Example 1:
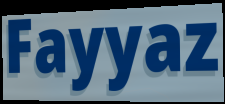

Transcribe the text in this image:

Fayyaz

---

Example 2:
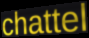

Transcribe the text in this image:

chattel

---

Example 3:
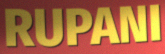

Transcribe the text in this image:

RUPANI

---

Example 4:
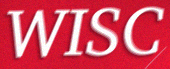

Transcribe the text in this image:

WISC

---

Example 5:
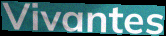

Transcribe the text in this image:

Vivantes